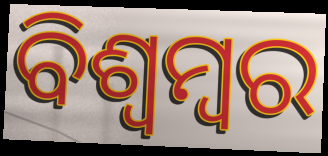
ବିଶ୍ଵମ୍ବର